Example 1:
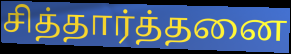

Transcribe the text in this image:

சித்தார்த்தனை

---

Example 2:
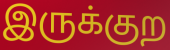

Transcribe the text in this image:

இருக்குற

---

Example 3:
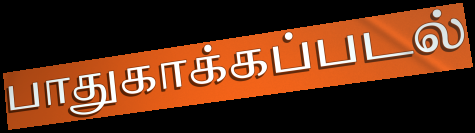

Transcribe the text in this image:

பாதுகாக்கப்படல்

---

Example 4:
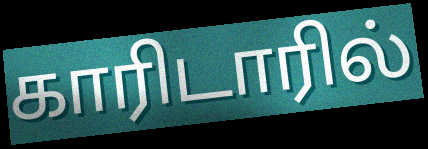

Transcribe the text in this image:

காரிடாரில்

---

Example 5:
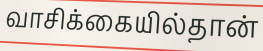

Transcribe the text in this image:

வாசிக்கையில்தான்